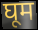
घूम